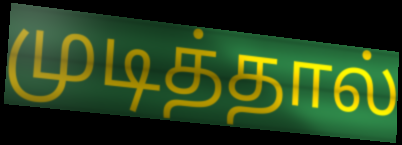
முடித்தால்